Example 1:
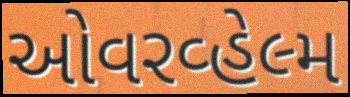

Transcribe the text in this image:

ઓવરવ્હેલ્મ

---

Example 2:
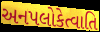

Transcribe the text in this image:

અનપલોકેત્વાતિ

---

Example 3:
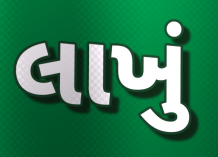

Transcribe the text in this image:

લાખું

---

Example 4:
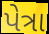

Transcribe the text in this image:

પેત્રા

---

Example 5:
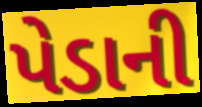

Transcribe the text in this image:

પેડાની